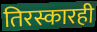
तिरस्कारही